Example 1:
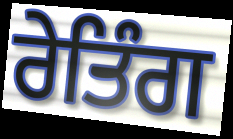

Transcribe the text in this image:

ਰੇਤਿੰਗ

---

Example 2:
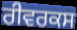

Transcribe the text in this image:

ਰੀਵਰਕਸ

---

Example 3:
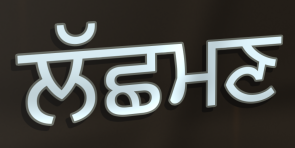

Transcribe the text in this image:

ਲੱਛਮਣ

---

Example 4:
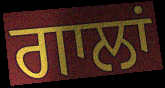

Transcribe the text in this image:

ਗਾਲਾਂ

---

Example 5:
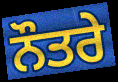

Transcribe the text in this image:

ਨੌਤਰੇ